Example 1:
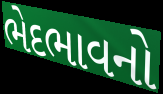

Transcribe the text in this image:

ભેદભાવનો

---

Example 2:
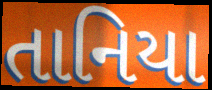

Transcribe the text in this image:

તાનિયા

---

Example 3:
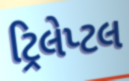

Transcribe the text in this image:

ટ્રિલેપ્ટલ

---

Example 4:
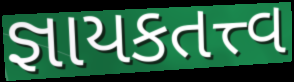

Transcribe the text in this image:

જ્ઞાયકતત્ત્વ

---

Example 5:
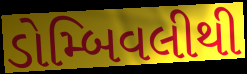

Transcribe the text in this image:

ડોમ્બિવલીથી